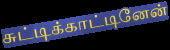
சுட்டிக்காட்டினேன்